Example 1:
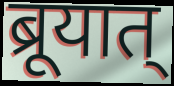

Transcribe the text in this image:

ब्रूयात्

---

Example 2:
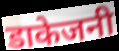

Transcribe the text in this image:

डाकेजनी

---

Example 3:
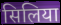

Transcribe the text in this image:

सिलिया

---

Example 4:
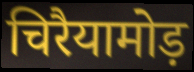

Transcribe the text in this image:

चिरैयामोड़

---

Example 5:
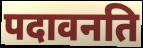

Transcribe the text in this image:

पदावनति